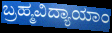
ಬ್ರಹ್ಮವಿದ್ಯಾಯಾಂ